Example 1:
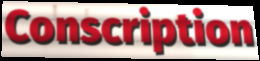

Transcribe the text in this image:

Conscription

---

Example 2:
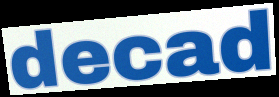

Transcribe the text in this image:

decad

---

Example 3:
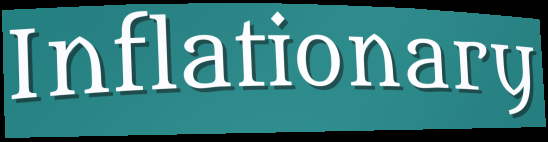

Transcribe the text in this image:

Inflationary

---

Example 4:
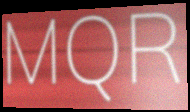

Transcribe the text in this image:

MQR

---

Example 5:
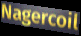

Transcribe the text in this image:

Nagercoil